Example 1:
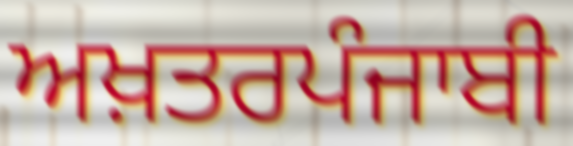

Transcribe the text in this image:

ਅਖ਼ਤਰਪੰਜਾਬੀ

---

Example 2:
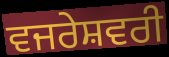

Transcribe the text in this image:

ਵਜਰੇਸ਼ਵਰੀ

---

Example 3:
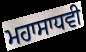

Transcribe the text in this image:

ਮਹਾਸਾਧਵੀ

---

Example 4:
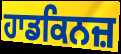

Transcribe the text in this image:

ਹਾਡਕਿਨਜ਼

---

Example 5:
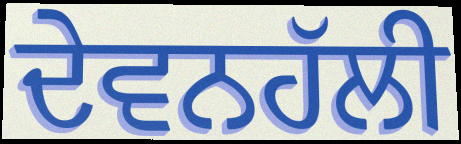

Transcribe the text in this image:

ਦੇਵਨਹੱਲੀ